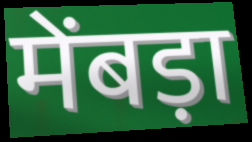
मेंबड़ा